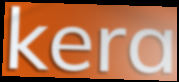
kera